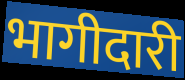
भागीदारी